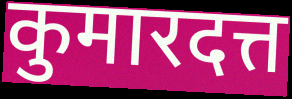
कुमारदत्त